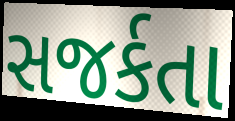
સજર્કતા